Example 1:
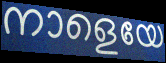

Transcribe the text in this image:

നാളെയേ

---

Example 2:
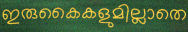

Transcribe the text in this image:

ഇരുകൈകളുമില്ലാതെ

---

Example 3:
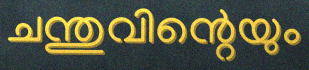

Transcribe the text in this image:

ചന്തുവിന്റെയും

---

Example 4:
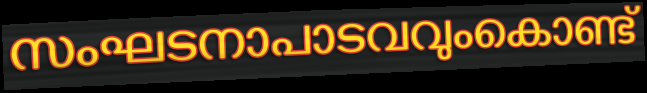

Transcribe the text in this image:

സംഘടനാപാടവവുംകൊണ്ട്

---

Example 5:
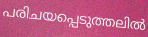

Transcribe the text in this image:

പരിചയപ്പെടുത്തലിൽ